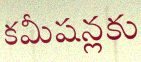
కమీషన్లకు